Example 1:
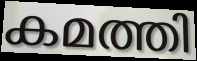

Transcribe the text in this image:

കമത്തി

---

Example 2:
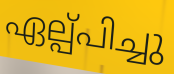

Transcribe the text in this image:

ഏല്പ്പിച്ചു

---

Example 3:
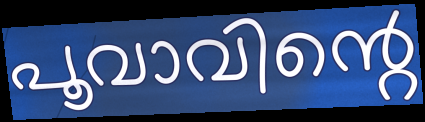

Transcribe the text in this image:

പൂവാവിന്റെ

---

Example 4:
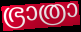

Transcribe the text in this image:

ഭ്രാത്രാ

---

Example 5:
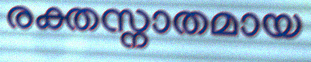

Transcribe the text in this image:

രക്തസ്നാതമായ